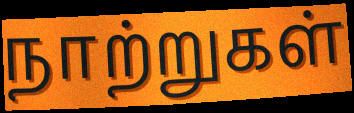
நாற்றுகள்